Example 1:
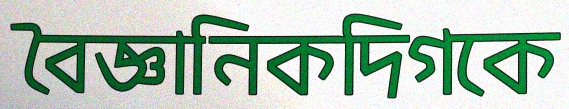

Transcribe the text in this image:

বৈজ্ঞানিকদিগকে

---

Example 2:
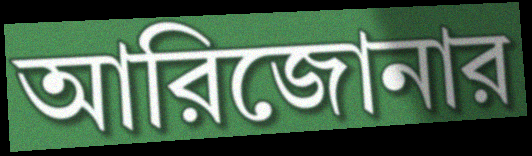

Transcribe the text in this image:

আরিজোনার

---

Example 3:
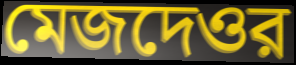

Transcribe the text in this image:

মেজদেওর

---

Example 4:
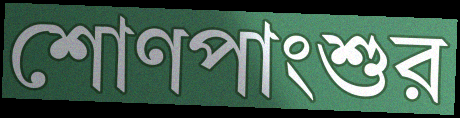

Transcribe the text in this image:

শোণপাংশুর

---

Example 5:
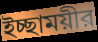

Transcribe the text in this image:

ইচ্ছাময়ীর